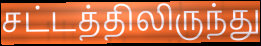
சட்டத்திலிருந்து